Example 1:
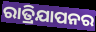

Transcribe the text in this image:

ରାତ୍ରିଯାପନର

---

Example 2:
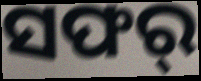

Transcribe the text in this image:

ସଫର୍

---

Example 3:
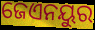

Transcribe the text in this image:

ଜେଏନୟୁର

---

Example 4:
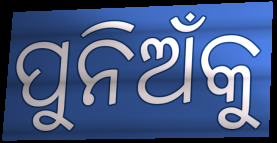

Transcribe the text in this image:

ପୁନିଅଁକୁ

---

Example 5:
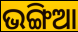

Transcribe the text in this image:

ଭଙ୍ଗିଆ